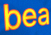
bea